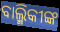
ବାଲ୍ମିକୀଙ୍କ